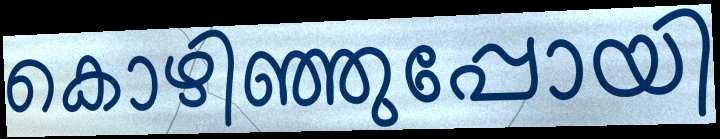
കൊഴിഞ്ഞുപ്പോയി